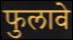
फुलावे